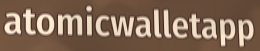
atomicwalletapp